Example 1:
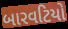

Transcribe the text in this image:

બારવટિયો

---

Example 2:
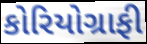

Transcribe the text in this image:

કોરિયોગ્રાફી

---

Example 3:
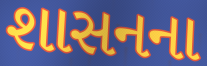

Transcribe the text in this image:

શાસનના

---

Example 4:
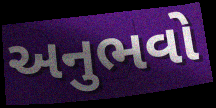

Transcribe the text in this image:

અનુભવો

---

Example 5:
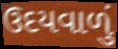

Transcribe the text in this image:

ઉદયવાળું